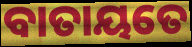
ବାତାୟତେ